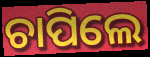
ଚାପିଲେ